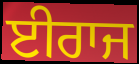
ਈਰਾਜ